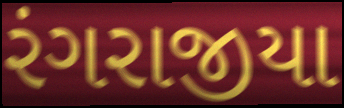
રંગરાજીયા